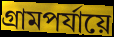
গ্রামপর্যায়ে